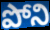
పోని